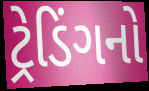
ટ્રેડિંગનો